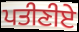
ਪਤੀਣੀਏ